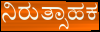
ನಿರುತ್ಸಾಹಕ